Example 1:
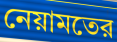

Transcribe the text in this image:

নেয়ামতের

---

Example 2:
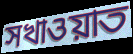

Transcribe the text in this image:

সখাওয়াত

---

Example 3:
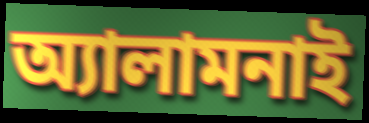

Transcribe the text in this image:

অ্যালামনাই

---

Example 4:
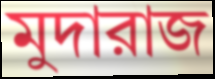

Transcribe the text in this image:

মুদারাজ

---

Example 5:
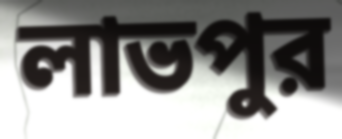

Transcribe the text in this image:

লাভপুর